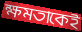
ক্ষমতাকেই